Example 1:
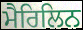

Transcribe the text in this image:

ਮੈਰਿਲਿਨ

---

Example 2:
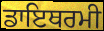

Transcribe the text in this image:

ਡਾਇਥਰਮੀ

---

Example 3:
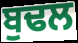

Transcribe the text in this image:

ਬੁਢਲ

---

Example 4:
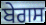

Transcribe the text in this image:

ਬੇਗਸ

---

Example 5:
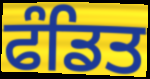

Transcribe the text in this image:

ਫੰਡਿਤ